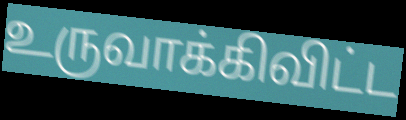
உருவாக்கிவிட்ட